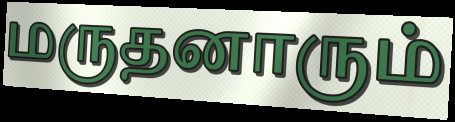
மருதனாரும்